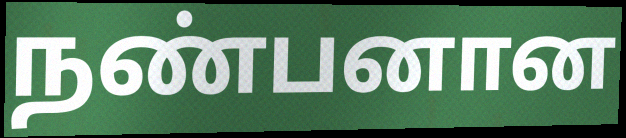
நண்பனான